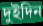
দুইদিন